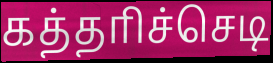
கத்தரிச்செடி